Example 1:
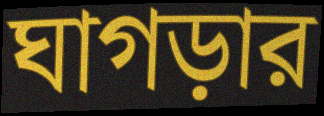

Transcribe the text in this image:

ঘাগড়ার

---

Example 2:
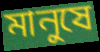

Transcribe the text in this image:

মানুষে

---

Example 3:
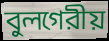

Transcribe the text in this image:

বুলগেরীয়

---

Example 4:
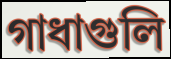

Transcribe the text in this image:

গাধাগুলি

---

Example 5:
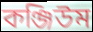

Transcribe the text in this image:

কঞ্জিউম